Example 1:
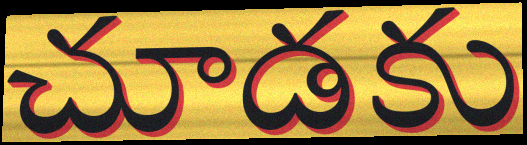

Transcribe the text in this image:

చూడకు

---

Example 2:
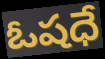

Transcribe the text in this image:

ఓషధే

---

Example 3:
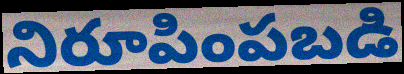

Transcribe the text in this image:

నిరూపింపబడి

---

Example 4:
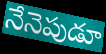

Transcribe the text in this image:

నేనెపుడూ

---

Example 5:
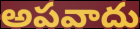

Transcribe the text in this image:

అపవాదు